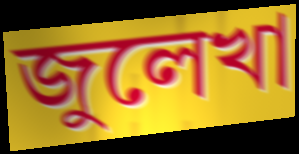
জুলেখা